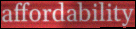
affordability